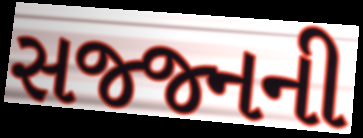
સજ્જ્નની